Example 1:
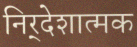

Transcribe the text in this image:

निर्देशात्मक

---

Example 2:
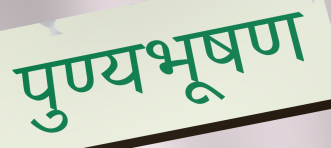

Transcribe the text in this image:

पुण्यभूषण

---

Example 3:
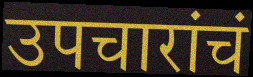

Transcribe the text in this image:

उपचारांचं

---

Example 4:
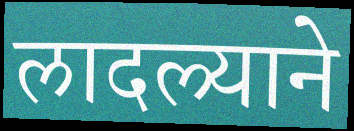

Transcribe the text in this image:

लादल्याने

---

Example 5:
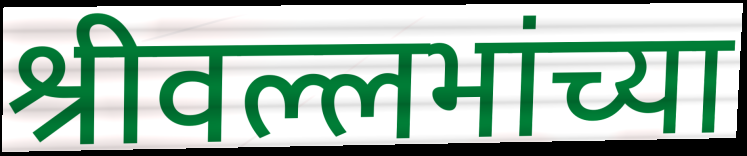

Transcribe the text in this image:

श्रीवल्लभांच्या